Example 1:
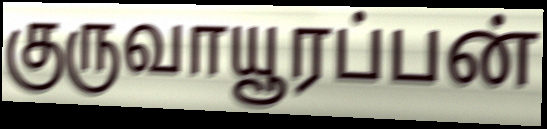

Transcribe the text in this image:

குருவாயூரப்பன்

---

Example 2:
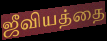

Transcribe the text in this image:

ஜீவியத்தை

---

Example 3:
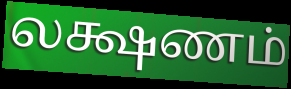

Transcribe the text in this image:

லக்ஷணம்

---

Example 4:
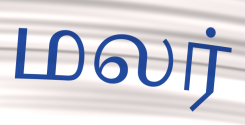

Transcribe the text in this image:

மலர்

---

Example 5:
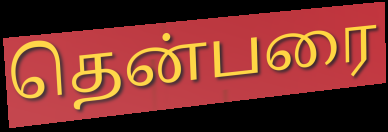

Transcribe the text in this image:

தென்பரை